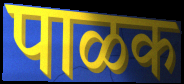
पाळक